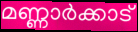
മണ്ണാർക്കാട്